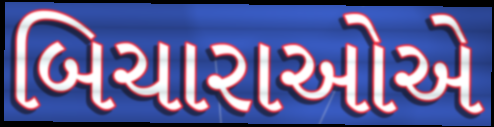
બિચારાઓએ